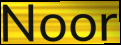
Noor